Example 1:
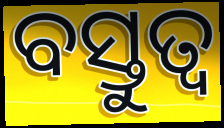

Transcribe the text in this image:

ବସ୍ତୁତ୍ୱ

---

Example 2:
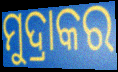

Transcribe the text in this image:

ମୁଦ୍ରାକର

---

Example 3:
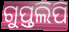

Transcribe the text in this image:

ଗୁପ୍ତଲିପି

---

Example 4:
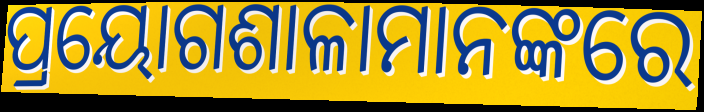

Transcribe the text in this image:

ପ୍ରୟୋଗଶାଳାମାନଙ୍କରେ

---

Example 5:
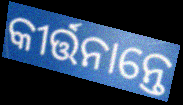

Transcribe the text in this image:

କୀର୍ତ୍ତନାନ୍ତେ